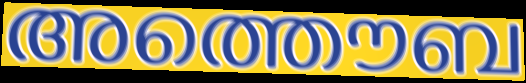
അത്തൌബ